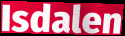
Isdalen